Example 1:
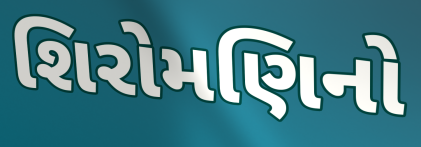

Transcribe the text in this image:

શિરોમણિનો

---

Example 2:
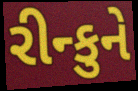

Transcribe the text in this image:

રીન્કુને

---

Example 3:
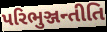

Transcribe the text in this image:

પરિભુઞ્જન્તીતિ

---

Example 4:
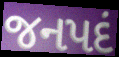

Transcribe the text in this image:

જનપદં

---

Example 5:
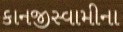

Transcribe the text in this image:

કાનજીસ્વામીના